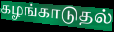
கழங்காடுதல்